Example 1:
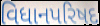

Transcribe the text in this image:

વિધાનપરિષદ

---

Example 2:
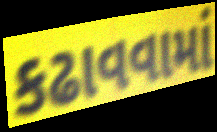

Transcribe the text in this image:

કઢાવવામાં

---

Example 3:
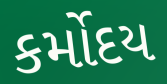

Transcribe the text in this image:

કર્મોદય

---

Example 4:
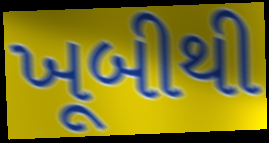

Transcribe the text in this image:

ખૂબીથી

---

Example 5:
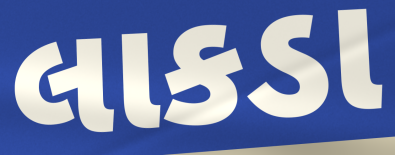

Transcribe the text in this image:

લાકડા